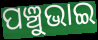
ପଞ୍ଚୁଭାଇ